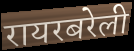
रायरबरेली